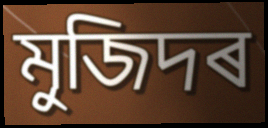
মুজিদৰ